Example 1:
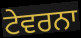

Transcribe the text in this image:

ਟੇਵਰਨਾ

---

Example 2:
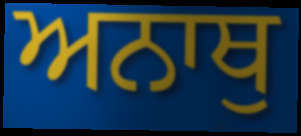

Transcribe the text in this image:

ਅਨਾਥੁ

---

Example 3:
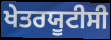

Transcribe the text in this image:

ਖੇਤਰਯੂਟੀਸੀ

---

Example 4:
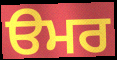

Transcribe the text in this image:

ੳਮਰ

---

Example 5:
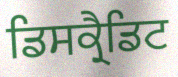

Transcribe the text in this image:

ਡਿਸਕ੍ਰੈਡਿਟ